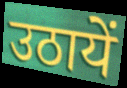
उठायें